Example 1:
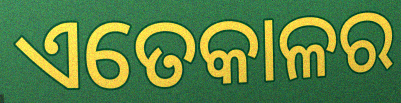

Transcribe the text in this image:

ଏତେକାଳର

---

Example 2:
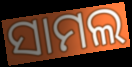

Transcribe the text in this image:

ସାମଲ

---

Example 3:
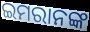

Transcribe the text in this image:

ଇମରାନଙ୍କ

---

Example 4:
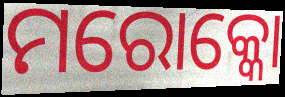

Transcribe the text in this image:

ମରୋକ୍କୋ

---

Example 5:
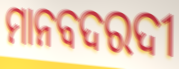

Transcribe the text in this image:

ମାନବଦରଦୀ